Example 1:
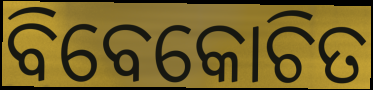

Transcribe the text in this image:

ବିବେକୋଚିତ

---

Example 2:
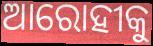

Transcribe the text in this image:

ଆରୋହୀକୁ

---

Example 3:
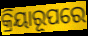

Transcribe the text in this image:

କ୍ରିୟାରୂପରେ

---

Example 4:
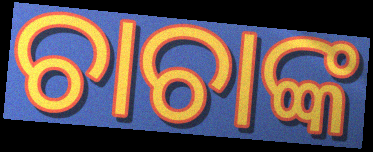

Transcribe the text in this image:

ଚାଚାଙ୍କ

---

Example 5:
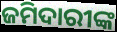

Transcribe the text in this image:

ଜମିଦାରୀଙ୍କ